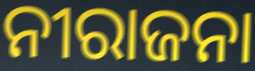
ନୀରାଜନା